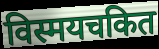
विस्मयचकित